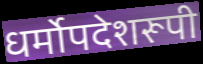
धर्मोपदेशरूपी